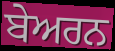
ਬੇਅਰਨ